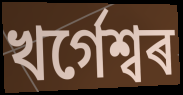
খৰ্গেশ্বৰ